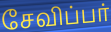
சேவிப்பர்